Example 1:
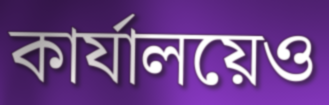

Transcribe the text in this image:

কার্যালয়েও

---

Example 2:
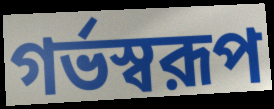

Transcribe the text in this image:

গর্ভস্বরূপ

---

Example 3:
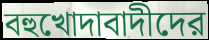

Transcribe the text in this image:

বহুখোদাবাদীদের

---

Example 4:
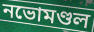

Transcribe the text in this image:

নভোমণ্ডল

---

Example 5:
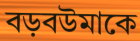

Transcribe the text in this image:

বড়বউমাকে